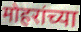
मोहरांच्या